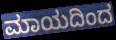
ಮಾಯದಿಂದ